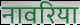
नावरिया